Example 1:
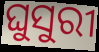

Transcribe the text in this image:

ଘୁସୁରୀ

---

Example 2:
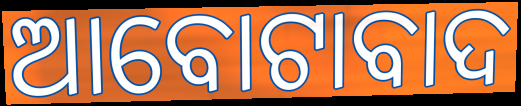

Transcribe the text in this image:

ଆବୋଟାବାଦ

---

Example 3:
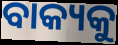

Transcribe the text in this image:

ବାକ୍ୟକୁ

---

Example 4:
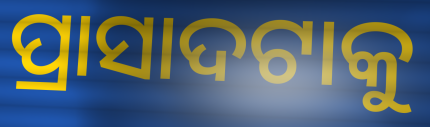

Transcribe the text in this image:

ପ୍ରାସାଦଟାକୁ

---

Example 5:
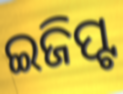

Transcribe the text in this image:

ଇଜିପ୍ଟ